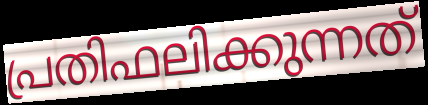
പ്രതിഫലിക്കുന്നത്